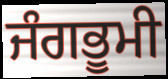
ਜੰਗਭੂਮੀ